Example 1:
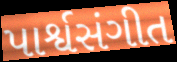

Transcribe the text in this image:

પાર્શ્વસંગીત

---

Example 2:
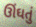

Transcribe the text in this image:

ઊંઘતું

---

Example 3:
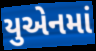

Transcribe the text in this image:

યુએનમાં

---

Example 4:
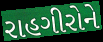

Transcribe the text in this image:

રાહગીરોને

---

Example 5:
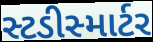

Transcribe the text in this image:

સ્ટડીસ્માર્ટર